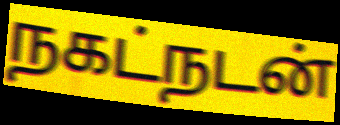
நகட்நடன்